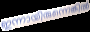
ഇന്നായിരുന്നെങ്കിൽ